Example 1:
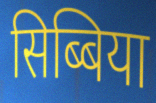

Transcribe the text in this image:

सिब्बिया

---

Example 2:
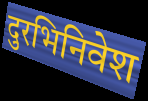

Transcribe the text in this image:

दुरभिनिवेश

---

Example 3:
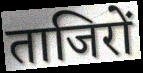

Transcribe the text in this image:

ताजिरों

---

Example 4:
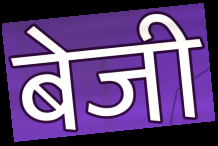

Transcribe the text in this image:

बेजी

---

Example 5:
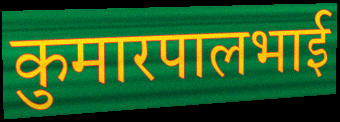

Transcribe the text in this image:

कुमारपालभाई